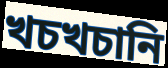
খচখচানি